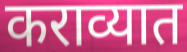
कराव्यात